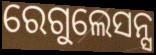
ରେଗୁଲେସନ୍ସ